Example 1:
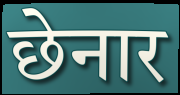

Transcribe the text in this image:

छेनार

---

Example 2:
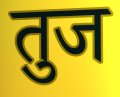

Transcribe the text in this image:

तुज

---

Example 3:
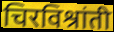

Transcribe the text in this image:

चिरविश्रांती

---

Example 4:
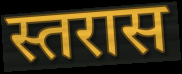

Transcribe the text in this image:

स्तरास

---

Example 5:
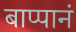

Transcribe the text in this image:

बाप्पानं